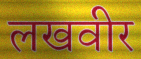
लखवीर